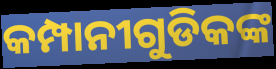
କମ୍ପାନୀଗୁଡିକଙ୍କ